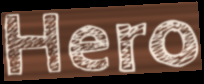
Hero